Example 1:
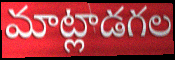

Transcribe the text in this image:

మాట్లాడగల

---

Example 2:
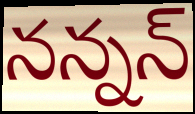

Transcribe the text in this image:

నన్నన్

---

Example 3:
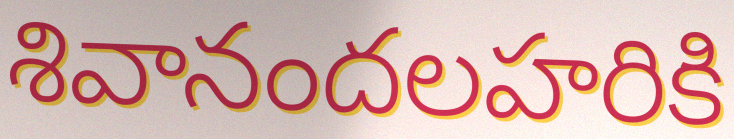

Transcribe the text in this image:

శివానందలహరికి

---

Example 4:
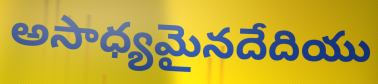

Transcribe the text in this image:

అసాధ్యమైనదేదియు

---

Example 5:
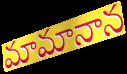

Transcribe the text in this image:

మామానాన